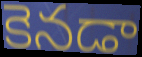
కెనడా